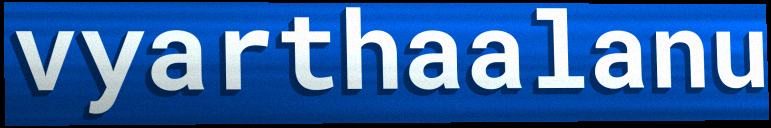
vyarthaalanu